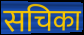
सचिका